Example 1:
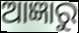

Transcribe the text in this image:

ଆଜ୍ଞାରୁ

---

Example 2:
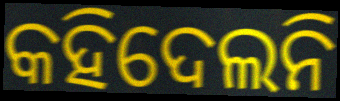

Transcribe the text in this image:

କହିଦେଲନି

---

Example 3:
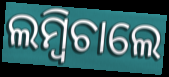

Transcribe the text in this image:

ଲମ୍ବିଚାଲେ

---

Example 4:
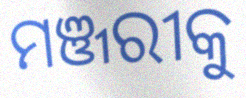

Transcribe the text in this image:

ମଞ୍ଜରୀକୁ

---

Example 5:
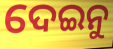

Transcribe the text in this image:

ଦେଇନୁ